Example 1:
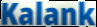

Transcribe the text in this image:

Kalank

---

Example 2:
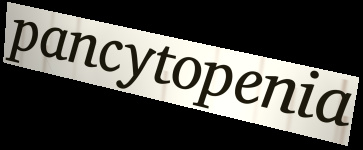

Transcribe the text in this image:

pancytopenia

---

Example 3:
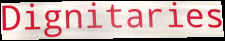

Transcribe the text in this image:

Dignitaries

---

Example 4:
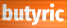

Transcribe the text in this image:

butyric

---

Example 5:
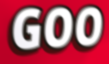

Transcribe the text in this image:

GOO